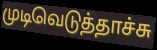
முடிவெடுத்தாச்சு